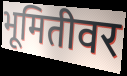
भूमितीवर